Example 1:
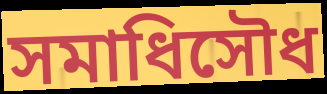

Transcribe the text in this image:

সমাধিসৌধ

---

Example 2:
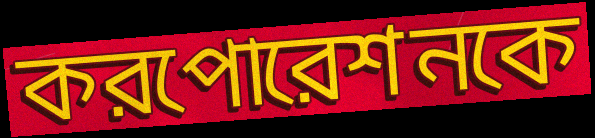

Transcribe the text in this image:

করপোরেশনকে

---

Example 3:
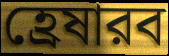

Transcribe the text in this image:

হ্রেষারব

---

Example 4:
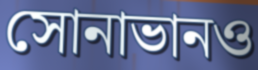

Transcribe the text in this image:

সোনাভানও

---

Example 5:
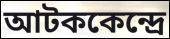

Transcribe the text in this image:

আটককেন্দ্রে